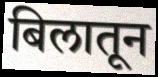
बिलातून